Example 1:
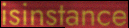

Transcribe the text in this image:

isinstance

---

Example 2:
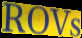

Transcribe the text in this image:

ROVs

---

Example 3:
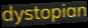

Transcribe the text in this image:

dystopian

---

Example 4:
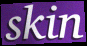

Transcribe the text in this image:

skin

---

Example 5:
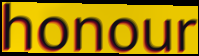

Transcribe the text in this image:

honour